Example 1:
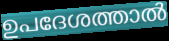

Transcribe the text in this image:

ഉപദേശത്താൽ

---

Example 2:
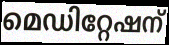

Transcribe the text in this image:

മെഡിറ്റേഷന്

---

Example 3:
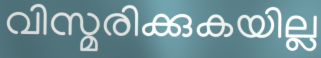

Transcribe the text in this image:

വിസ്മരിക്കുകയില്ല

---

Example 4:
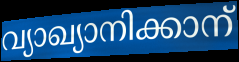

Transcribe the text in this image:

വ്യാഖ്യാനിക്കാന്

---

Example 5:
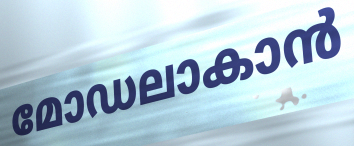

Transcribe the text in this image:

മോഡലാകാൻ